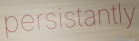
persistantly